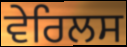
ਵੇਰਿਲਸ